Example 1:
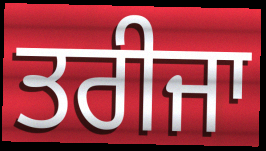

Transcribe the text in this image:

ਤਰੀਜਾ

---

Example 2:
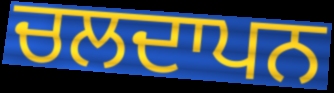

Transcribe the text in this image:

ਚਲਦਾਪਨ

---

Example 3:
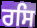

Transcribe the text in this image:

ਰਸਿ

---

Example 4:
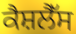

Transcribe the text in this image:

ਕੈਸ਼ਲੈੱਸ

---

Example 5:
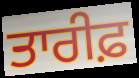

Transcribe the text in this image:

ਤਾਰੀਫ਼